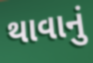
થાવાનું